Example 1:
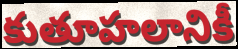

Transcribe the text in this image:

కుతూహలానికీ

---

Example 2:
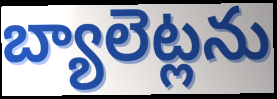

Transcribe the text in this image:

బ్యాలెట్లను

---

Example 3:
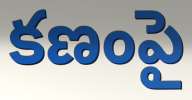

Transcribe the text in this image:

కణంపై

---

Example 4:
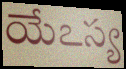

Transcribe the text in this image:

యేఽస్య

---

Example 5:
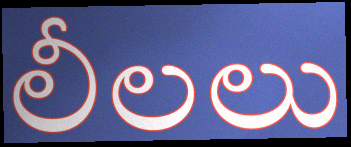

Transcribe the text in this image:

లీలలు